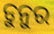
ଡୁନୁର